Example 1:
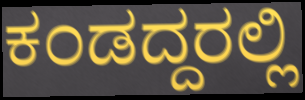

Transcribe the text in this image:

ಕಂಡದ್ದರಲ್ಲಿ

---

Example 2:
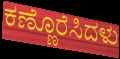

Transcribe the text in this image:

ಕಣ್ಣೊರೆಸಿದಳು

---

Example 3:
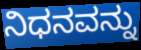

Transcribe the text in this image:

ನಿಧನವನ್ನು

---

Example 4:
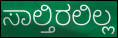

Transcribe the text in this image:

ಸಾಲ್ತಿರಲಿಲ್ಲ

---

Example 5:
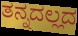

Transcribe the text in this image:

ತನ್ನದಲ್ಲದ